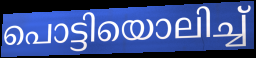
പൊട്ടിയൊലിച്ച്